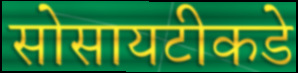
सोसायटीकडे